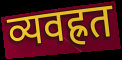
व्यवह्रत